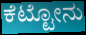
ಕೆಟ್ಟೋನು